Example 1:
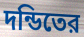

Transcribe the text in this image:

দন্ডিতের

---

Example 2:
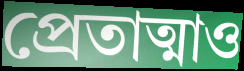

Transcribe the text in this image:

প্রেতাত্মাও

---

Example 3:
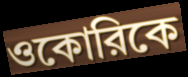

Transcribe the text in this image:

ওকোরিকে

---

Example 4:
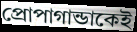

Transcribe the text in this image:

প্রোপাগান্ডাকেই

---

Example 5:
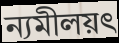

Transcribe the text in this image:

ন্যমীলয়ৎ